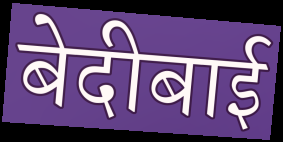
बेदीबाई